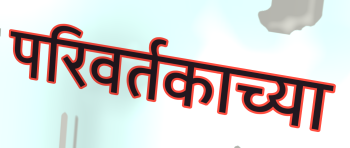
परिवर्तकाच्या